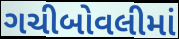
ગચીબોવલીમાં